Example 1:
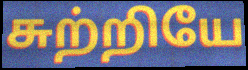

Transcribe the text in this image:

சுற்றியே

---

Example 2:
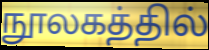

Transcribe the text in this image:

நூலகத்தில்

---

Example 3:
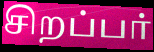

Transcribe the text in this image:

சிறப்பர்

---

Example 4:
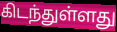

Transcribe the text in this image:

கிடந்துள்ளது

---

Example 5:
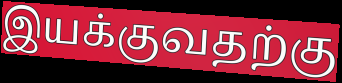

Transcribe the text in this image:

இயக்குவதற்கு